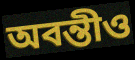
অবন্তীও